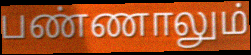
பண்ணாலும்